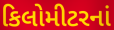
કિલોમીટરનાં